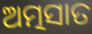
ଅତ୍ମସାତ